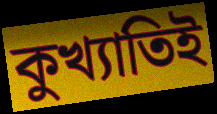
কুখ্যাতিই